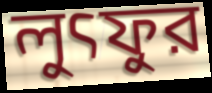
লুৎফুর